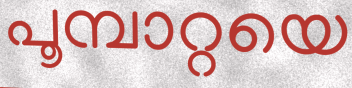
പൂമ്പാറ്റയെ